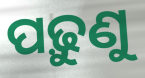
ପଢ଼ୁଣୁ